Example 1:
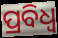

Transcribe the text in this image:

ପ୍ରବିଧ୍ଵ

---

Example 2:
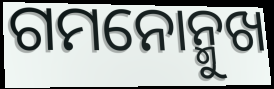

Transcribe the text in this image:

ଗମନୋନ୍ମୁଖ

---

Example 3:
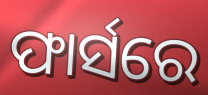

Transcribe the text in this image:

ଫାର୍ସରେ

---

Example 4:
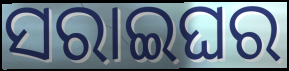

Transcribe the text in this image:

ସରାଇଘର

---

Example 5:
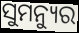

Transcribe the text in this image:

ସୁମନ୍ୟୁର